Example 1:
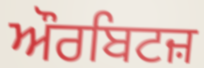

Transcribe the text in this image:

ਔਰਬਿਟਜ਼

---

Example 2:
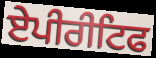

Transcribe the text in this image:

ਏਪੀਰੀਟਿਫ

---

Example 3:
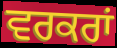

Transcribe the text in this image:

ਵਰਕਰਾਂ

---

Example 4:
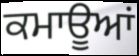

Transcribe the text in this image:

ਕਮਾਊਆਂ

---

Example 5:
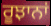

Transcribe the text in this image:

ਰੂਝਾਨਾਂ